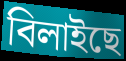
বিলাইছে